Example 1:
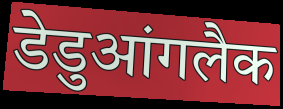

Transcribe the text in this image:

डेडुआंगलैक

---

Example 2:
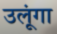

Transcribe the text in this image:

उलूंगा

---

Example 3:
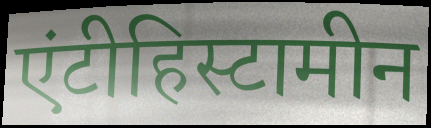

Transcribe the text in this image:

एंटीहिस्टामीन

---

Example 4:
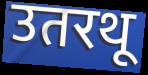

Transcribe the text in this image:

उतरथू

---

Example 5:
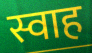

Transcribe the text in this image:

स्वाह